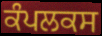
ਕੰਪਲਕਸ